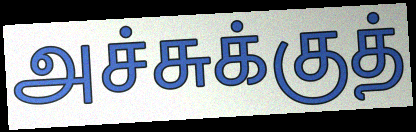
அச்சுக்குத்